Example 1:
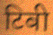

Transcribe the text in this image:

टिबी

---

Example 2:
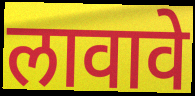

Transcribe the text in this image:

लावावे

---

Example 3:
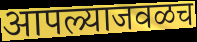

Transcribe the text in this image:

आपल्याजवळच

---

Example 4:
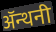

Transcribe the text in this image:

ॲन्थनी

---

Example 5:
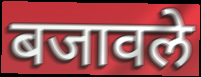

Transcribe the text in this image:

बजावले